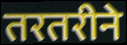
तरतरीने